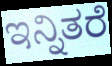
ಇನ್ನಿತರೆ